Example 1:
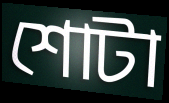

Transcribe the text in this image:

শোটা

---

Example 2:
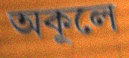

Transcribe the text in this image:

অকূলে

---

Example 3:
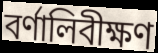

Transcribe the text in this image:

বর্ণালিবীক্ষণ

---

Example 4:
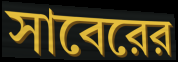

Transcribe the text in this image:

সাবেরের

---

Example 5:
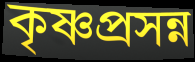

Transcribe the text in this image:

কৃষ্ণপ্রসন্ন